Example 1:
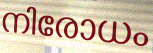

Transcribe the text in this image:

നിരോധം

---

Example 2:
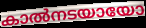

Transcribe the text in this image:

കാൽനടയായോ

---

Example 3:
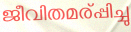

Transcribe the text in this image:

ജീവിതമര്പ്പിച്ചു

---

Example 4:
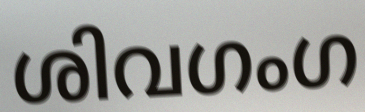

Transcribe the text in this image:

ശിവഗംഗ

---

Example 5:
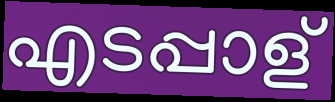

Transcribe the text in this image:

എടപ്പാള്